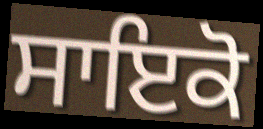
ਸਾਇਕੋ